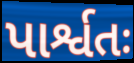
પાર્શ્વતઃ